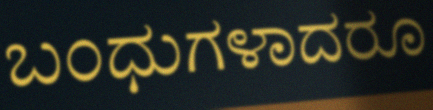
ಬಂಧುಗಳಾದರೂ